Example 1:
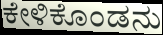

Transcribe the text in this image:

ಕೇಳಿಕೊಂಡನು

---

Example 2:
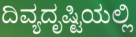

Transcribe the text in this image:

ದಿವ್ಯದೃಷ್ಟಿಯಲ್ಲಿ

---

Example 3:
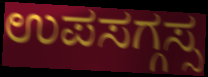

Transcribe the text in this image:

ಉಪಸಗ್ಗಸ್ಸ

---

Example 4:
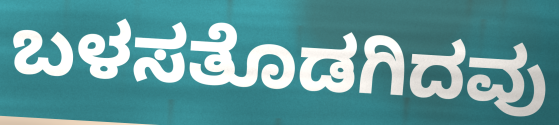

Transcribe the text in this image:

ಬಳಸತೊಡಗಿದವು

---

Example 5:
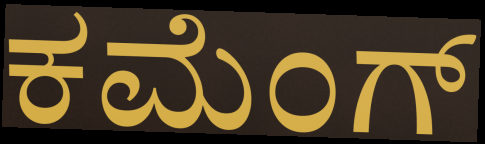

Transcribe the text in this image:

ಕಮೆಂಗ್